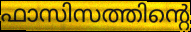
ഫാസിസത്തിന്റെ